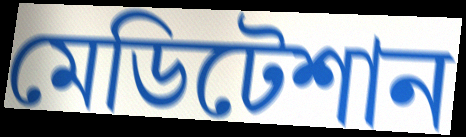
মেডিটেশান